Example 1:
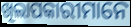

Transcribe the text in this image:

ଖିଲାପକାରୀମାନେ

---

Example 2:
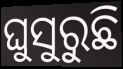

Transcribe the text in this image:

ଘୁସୁରୁଛି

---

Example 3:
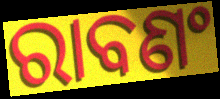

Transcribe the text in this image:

ରାବଣଂ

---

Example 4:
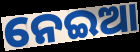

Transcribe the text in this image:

ନେଇଆ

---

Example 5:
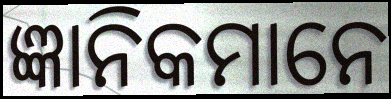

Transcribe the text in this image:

ଜ୍ଞାନିକମାନେ